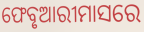
ଫେବୃଆରୀମାସରେ